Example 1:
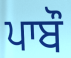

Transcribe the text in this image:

ਪਾਬੌ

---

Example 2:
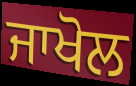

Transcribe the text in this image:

ਜਾਖੋਲ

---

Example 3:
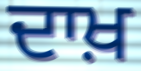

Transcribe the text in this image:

ਦਾਖ਼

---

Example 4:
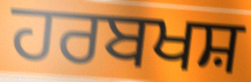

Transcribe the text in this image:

ਹਰਬਖਸ਼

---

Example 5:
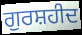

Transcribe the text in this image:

ਗੁਰਸ਼ਹੀਦ